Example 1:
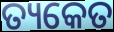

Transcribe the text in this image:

ତ୍ୟକେତ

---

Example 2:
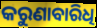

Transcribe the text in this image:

କରୁଣାବାରିଧି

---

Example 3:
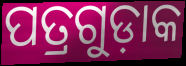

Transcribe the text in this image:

ପତ୍ରଗୁଡ଼ାକ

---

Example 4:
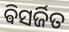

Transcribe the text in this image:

ଵିସର୍ଜିତ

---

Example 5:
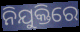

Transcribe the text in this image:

ନିଯୁକ୍ତିରେ